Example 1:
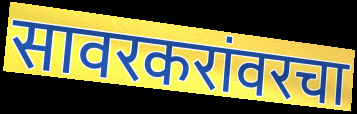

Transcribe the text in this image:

सावरकरांवरचा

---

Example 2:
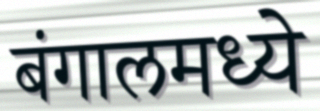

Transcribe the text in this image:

बंगालमध्ये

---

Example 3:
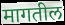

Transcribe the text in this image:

मागतील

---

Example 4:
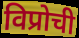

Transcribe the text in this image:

विप्रोची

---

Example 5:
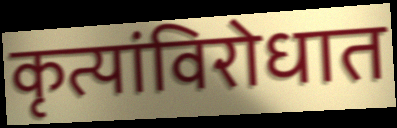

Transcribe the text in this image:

कृत्यांविरोधात